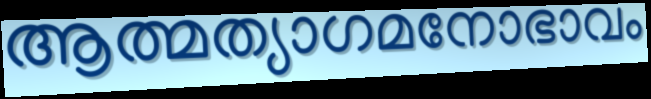
ആത്മത്യാഗമനോഭാവം